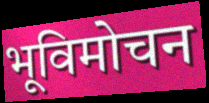
भूविमोचन